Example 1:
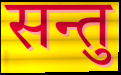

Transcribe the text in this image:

सन्‍तु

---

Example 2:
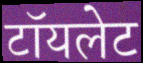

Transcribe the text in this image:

टॉयलेट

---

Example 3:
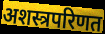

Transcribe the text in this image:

अशस्त्रपरिणत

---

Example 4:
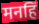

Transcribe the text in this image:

मनहिं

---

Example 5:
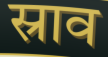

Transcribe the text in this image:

स्राव